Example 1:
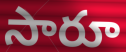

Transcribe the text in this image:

సారూ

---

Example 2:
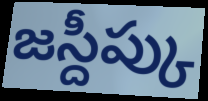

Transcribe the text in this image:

జస్దీప్కు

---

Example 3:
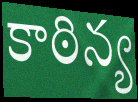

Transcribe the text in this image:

కాఠిన్య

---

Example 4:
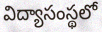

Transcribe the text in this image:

విద్యాసంస్థలో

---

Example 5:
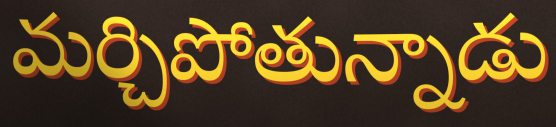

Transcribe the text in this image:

మర్చిపోతున్నాడు